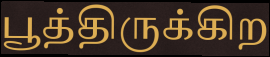
பூத்திருக்கிற